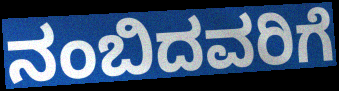
ನಂಬಿದವರಿಗೆ